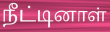
நீட்டினாள்